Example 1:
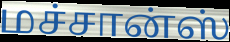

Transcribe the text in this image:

மச்சான்ஸ்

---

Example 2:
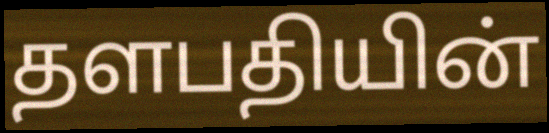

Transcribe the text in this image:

தளபதியின்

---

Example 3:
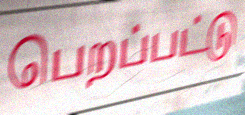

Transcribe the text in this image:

பெறப்பட்டு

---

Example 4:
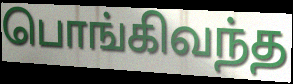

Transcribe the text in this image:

பொங்கிவந்த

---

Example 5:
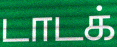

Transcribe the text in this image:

டாடக்